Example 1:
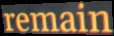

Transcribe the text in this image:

remain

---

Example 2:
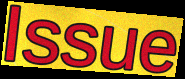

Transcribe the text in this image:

Issue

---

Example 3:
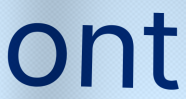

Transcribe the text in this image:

ont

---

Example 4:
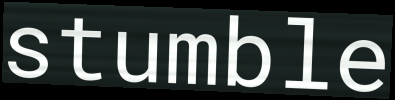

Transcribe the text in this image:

stumble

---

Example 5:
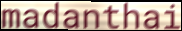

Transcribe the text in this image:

madanthai